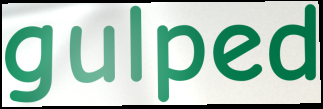
gulped